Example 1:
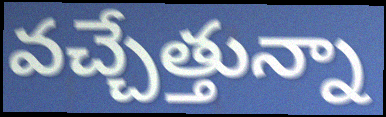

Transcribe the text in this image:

వచ్చేత్తున్నా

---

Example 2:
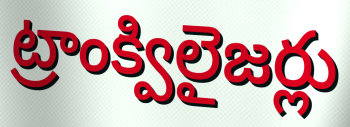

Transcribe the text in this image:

ట్రాంక్విలైజర్లు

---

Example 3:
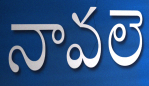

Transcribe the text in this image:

నావలె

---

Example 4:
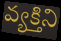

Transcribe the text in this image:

వ్యక్తిని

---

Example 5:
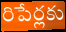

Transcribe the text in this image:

రిపేర్లకు